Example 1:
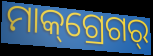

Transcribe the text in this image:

ମାକ୍‌ଗ୍ରେଗର୍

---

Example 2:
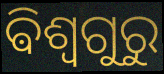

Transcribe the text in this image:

ଵିଶ୍ଵଗୁରୁ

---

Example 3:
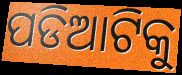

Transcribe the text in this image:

ପଡିଆଟିକୁ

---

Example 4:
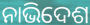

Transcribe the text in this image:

ନାଭିଦେଶ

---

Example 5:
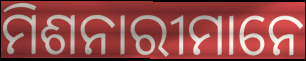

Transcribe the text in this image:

ମିଶନାରୀମାନେ